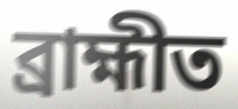
ব্ৰাহ্মীত